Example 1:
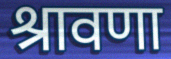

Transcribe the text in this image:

श्रावणा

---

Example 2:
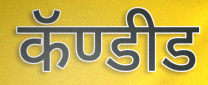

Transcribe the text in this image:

कॅण्डीड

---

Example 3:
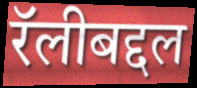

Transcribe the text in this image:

रॅलीबद्दल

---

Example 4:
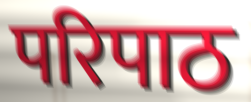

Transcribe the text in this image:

परिपाठ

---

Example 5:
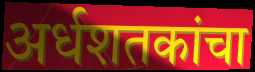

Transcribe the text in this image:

अर्धशतकांचा